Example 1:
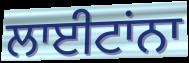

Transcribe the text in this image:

ਲਾਈਟਾਂਨਾ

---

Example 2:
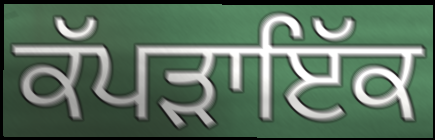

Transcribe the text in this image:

ਕੱਪੜਾਇੱਕ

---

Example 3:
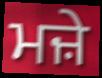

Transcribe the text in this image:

ਮਜ਼ੇ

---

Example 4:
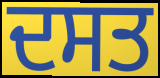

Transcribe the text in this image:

ਦਸਤ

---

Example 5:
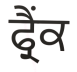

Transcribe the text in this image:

ਫ੍ਰੈਂਕ